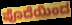
ಪೊದೆಯಿಂದ